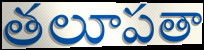
తలూపతా